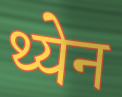
थ्येन